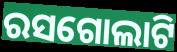
ରସଗୋଲାଟି